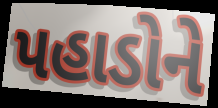
પહાડોને